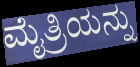
ಮೈತ್ರಿಯನ್ನು